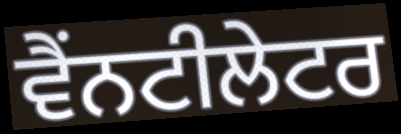
ਵੈਂਨਟੀਲੇਟਰ